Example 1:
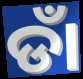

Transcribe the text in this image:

ଡାଁ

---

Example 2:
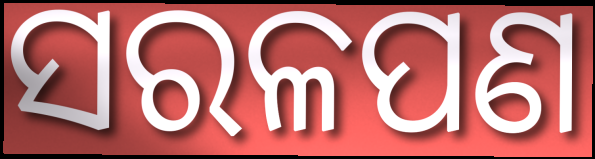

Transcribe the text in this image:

ସରଳପଣ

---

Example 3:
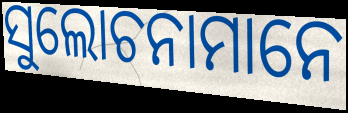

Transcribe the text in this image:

ସୁଲୋଚନାମାନେ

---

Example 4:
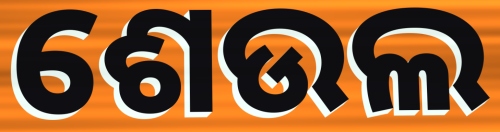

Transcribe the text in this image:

ଶେଉଲ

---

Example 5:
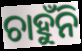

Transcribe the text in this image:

ଚାହୁଁନି